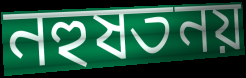
নহুষতনয়